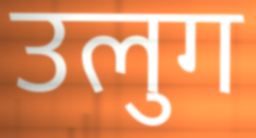
उलुग